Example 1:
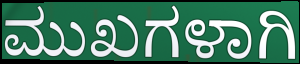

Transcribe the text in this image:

ಮುಖಗಳಾಗಿ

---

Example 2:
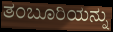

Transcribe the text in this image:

ತಂಬೂರಿಯನ್ನು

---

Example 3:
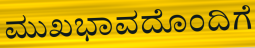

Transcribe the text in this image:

ಮುಖಭಾವದೊಂದಿಗೆ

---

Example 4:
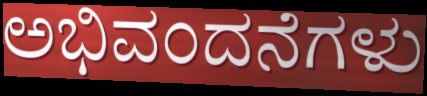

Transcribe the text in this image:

ಅಭಿವಂದನೆಗಳು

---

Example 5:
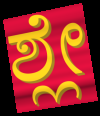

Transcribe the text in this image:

ಶ್ಲೇ